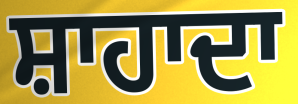
ਸ਼ਾਹਾਦਾ